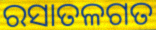
ରସାତଳଗତ